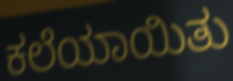
ಕಲೆಯಾಯಿತು